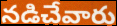
నడిచేవారు